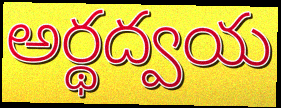
అర్థద్వయ